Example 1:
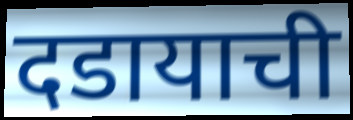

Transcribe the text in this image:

दडायाची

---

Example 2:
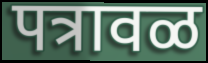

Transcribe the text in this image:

पत्रावळ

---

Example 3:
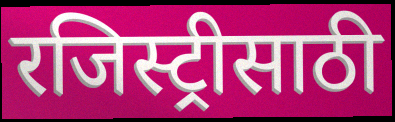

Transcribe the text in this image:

रजिस्ट्रीसाठी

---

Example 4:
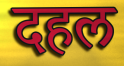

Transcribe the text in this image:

दहल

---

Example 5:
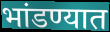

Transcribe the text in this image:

भांडण्यात